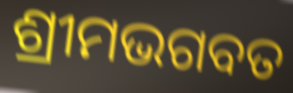
ଶ୍ରୀମଭଗବତ